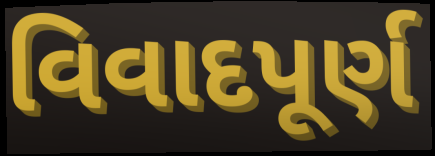
વિવાદપૂર્ણ